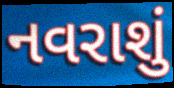
નવરાશું